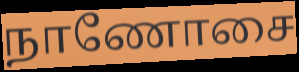
நாணோசை